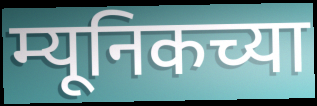
म्यूनिकच्या